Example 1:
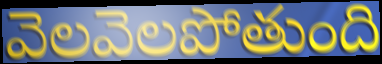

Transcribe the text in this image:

వెలవెలపోతుంది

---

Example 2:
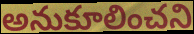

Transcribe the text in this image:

అనుకూలించని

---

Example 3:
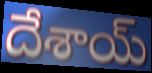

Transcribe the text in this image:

దేశాయ్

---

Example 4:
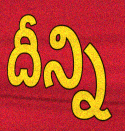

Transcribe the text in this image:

దీన్ని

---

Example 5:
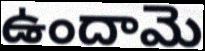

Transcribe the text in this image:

ఉందామె